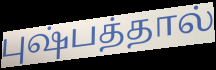
புஷ்பத்தால்